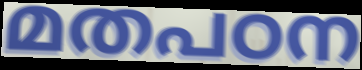
മതപഠന